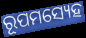
ରୂପମସ୍ୟେହ